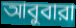
আবুবারা